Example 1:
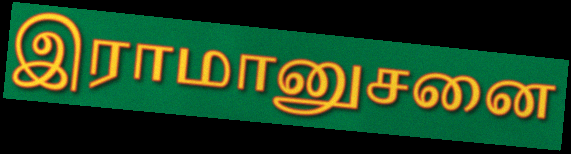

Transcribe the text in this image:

இராமானுசனை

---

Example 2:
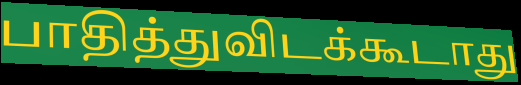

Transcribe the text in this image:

பாதித்துவிடக்கூடாது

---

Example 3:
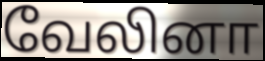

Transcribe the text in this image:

வேலினா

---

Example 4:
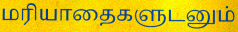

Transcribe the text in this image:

மரியாதைகளுடனும்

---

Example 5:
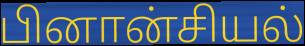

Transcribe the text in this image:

பினான்சியல்